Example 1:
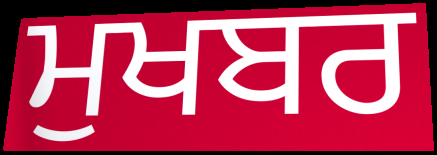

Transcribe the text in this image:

ਮੁਖਬਰ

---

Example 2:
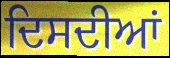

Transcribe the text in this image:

ਦਿਸਦੀਆਂ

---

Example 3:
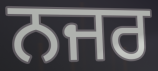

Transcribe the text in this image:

ਨਜਰ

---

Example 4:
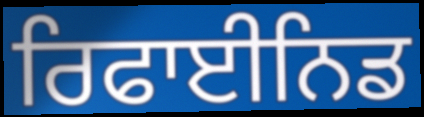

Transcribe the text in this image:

ਰਿਫਾਈਨਿਡ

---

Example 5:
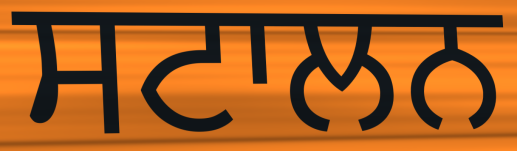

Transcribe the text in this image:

ਸਟਾਲਨ